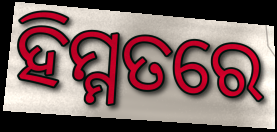
ହିମ୍ମତରେ